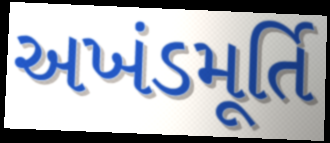
અખંડમૂર્તિ